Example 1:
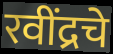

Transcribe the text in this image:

रवींद्रचे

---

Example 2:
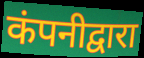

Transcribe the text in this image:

कंपनीद्वारा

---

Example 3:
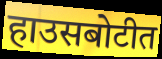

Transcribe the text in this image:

हाउसबोटीत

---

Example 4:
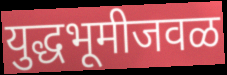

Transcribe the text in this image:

युद्धभूमीजवळ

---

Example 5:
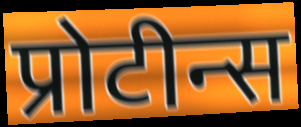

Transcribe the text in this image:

प्रोटीन्स